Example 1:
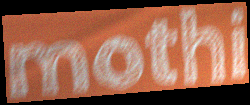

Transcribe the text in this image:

mothi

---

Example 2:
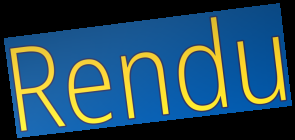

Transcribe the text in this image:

Rendu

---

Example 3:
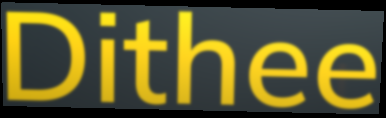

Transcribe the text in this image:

Dithee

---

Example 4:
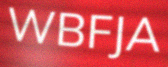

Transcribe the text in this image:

WBFJA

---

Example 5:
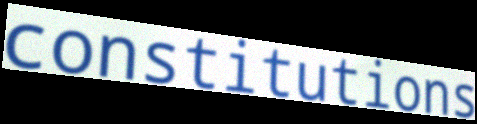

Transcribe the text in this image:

constitutions